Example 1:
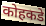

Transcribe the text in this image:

कोहकडे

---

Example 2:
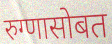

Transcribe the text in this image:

रुग्णासोबत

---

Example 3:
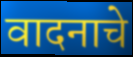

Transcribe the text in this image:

वादनाचे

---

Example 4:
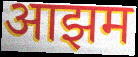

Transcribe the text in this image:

आझम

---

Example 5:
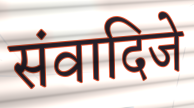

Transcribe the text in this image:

संवादिजे